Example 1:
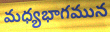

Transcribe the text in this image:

మధ్యభాగమున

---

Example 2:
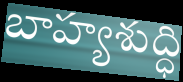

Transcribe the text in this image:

బాహ్యశుద్ధి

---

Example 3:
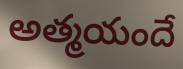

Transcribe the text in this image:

అత్మయందే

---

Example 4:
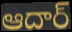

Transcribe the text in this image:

ఆదార్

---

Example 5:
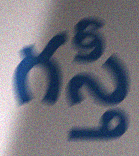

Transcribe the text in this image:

గస్తీ